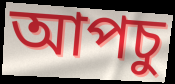
আপচু